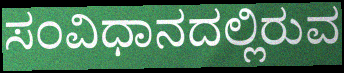
ಸಂವಿಧಾನದಲ್ಲಿರುವ